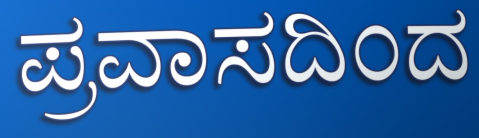
ಪ್ರವಾಸದಿಂದ